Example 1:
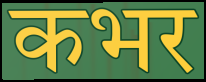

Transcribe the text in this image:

कभर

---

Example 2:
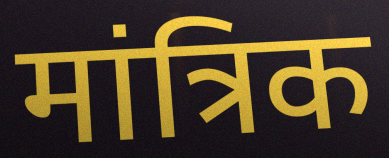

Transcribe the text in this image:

मांत्रिक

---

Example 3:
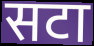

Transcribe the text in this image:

सटा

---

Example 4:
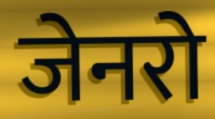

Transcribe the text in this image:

जेनरो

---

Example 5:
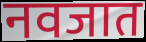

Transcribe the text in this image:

नवजात